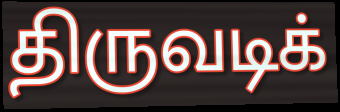
திருவடிக்